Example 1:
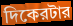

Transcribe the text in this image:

দিকেরটার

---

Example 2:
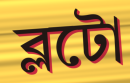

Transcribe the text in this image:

ব্লটো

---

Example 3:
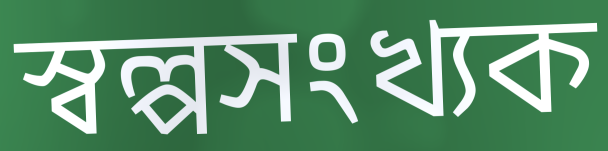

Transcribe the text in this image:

স্বল্পসংখ্যক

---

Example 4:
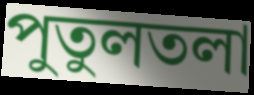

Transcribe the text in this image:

পুতুলতলা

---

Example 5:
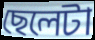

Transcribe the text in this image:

ছেলেটা